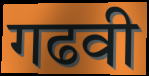
गढवी